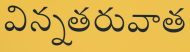
విన్నతరువాత